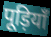
पूड़ियाँ